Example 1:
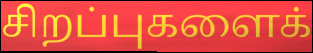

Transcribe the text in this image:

சிறப்புகளைக்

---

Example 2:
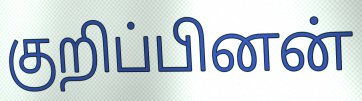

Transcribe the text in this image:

குறிப்பினன்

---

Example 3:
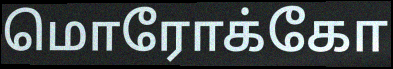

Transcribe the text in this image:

மொரோக்கோ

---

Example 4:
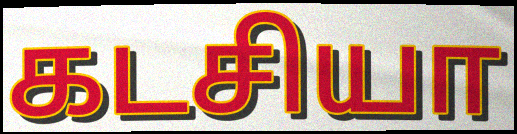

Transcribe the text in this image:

கடசியா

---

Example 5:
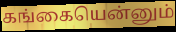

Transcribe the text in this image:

கங்கையென்னும்